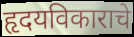
हृदयविकाराचे